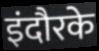
इंदौरके